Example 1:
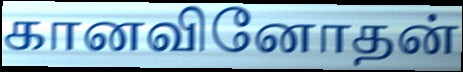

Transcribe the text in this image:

கானவினோதன்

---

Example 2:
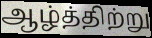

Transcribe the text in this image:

ஆழ்த்திற்று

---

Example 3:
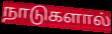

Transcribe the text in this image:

நாடுகளால்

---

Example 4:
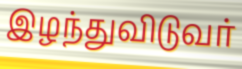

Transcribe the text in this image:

இழந்துவிடுவர்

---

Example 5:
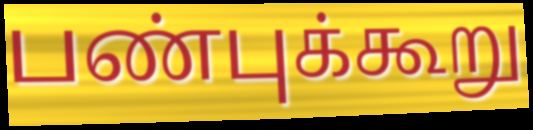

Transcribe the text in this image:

பண்புக்கூறு